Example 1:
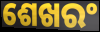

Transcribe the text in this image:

ଶେଖରଂ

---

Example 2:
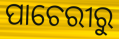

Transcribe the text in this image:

ପାଚେରୀରୁ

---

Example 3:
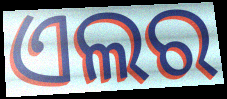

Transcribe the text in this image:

ଏଲର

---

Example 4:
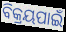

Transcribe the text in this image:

ବିକ୍ରୟପାଇଁ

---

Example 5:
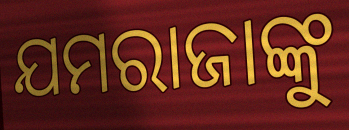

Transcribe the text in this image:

ଯମରାଜାଙ୍କୁ